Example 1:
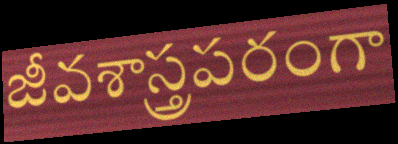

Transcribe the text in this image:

జీవశాస్త్రపరంగా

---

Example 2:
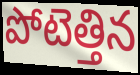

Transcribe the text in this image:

పోటెత్తిన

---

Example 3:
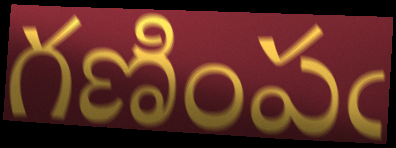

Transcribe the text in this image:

గణింపఁ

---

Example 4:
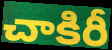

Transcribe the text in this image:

చాకిరీ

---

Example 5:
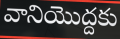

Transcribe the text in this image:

వానియొద్దకు